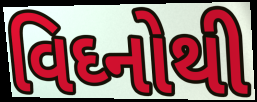
વિઘ્નોથી